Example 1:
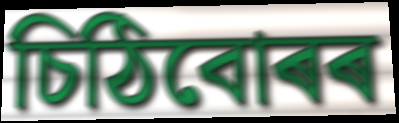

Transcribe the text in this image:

চিঠিবোৰৰ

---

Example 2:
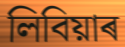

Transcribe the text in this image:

লিবিয়াৰ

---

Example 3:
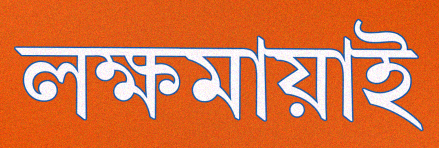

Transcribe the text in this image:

লক্ষমায়াই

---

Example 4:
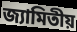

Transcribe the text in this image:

জ্যামিতীয়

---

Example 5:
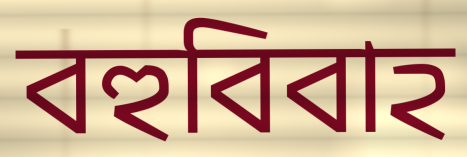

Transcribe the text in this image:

বহুবিবাহ